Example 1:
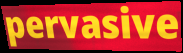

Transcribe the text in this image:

pervasive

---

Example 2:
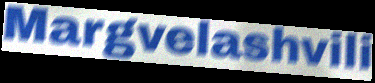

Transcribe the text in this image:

Margvelashvili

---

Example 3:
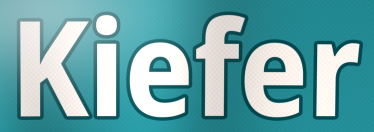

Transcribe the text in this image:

Kiefer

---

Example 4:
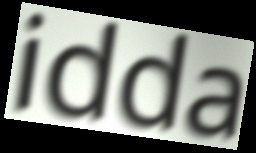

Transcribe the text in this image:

idda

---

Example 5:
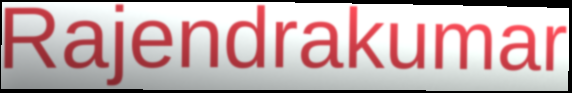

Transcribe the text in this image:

Rajendrakumar